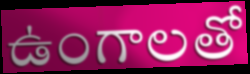
ఉంగాలతో